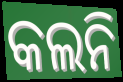
କଲନି